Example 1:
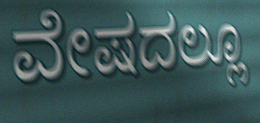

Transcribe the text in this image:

ವೇಷದಲ್ಲೂ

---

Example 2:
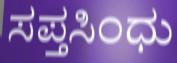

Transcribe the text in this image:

ಸಪ್ತಸಿಂಧು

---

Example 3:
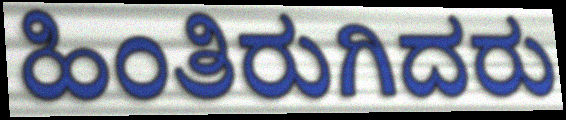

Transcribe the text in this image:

ಹಿಂತಿರುಗಿದರು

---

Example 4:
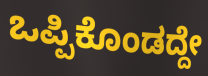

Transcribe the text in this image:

ಒಪ್ಪಿಕೊಂಡದ್ದೇ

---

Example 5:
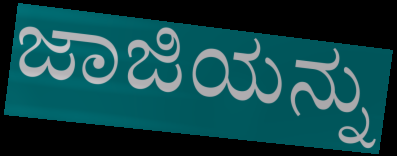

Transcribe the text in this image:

ಜಾಜಿಯನ್ನು